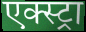
एक्स्ट्रा